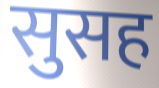
सुसह